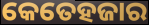
କେତେହଜାର